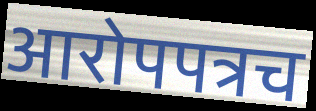
आरोपपत्रच